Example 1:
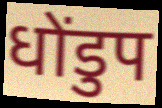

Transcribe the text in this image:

धोंडुप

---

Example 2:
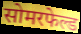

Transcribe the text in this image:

सोमरफेल्ड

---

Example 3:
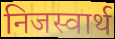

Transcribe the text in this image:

निजस्वार्थ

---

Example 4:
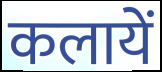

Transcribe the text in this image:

कलायें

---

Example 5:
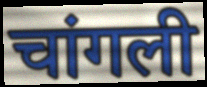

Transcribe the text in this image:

चांगली